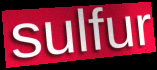
sulfur